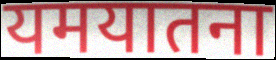
यमयातना